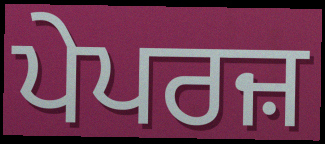
ਪੇਪਰਜ਼